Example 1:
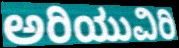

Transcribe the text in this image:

ಅರಿಯುವಿರಿ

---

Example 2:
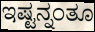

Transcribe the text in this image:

ಇಷ್ಟನ್ನಂತೂ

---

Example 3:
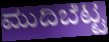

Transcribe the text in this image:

ಮುದಿಬೆಟ್ಟ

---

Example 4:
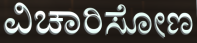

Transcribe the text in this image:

ವಿಚಾರಿಸೋಣ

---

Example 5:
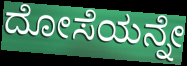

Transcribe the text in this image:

ದೋಸೆಯನ್ನೇ